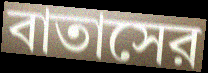
বাতাসের